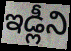
ఇడ్లీని